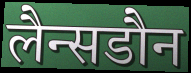
लैन्सडौन